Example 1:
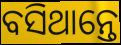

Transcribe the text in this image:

ବସିଥାନ୍ତେ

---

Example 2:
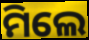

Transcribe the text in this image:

ମିଲେ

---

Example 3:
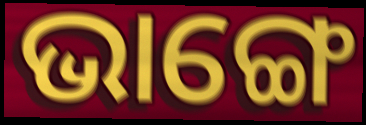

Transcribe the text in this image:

ଭାଙ୍ଗେ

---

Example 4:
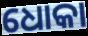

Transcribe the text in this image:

ଧୋକା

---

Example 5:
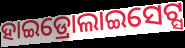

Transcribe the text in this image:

ହାଇଡ୍ରୋଲାଇସେଟ୍ସ